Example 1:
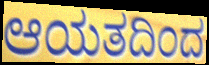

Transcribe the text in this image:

ಆಯತದಿಂದ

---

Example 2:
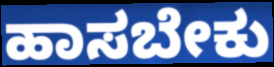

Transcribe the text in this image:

ಹಾಸಬೇಕು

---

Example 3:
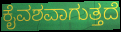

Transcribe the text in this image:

ಕೈವಶವಾಗುತ್ತದೆ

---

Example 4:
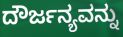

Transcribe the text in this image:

ದೌರ್ಜನ್ಯವನ್ನು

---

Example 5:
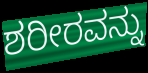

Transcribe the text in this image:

ಶರೀರವನ್ನು